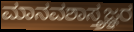
ಮಾನವಶಾಸ್ತ್ರಜ್ಞರ